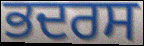
ਭਦਰਸ